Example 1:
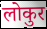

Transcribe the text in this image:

लोकुर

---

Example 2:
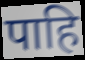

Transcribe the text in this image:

पाहि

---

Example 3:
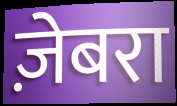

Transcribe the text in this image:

ज़ेबरा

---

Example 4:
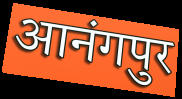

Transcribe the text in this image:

आनंगपुर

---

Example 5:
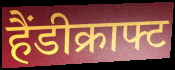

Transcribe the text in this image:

हैंडीक्राफ्ट